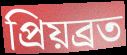
প্রিয়ব্রত